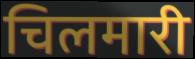
चिलमारी